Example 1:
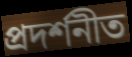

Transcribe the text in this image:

প্ৰদৰ্শনীত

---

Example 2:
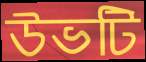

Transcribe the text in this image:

উভটি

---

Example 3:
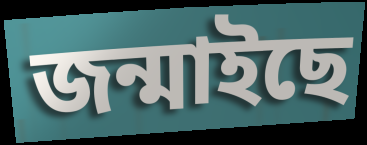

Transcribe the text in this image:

জন্মাইছে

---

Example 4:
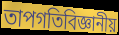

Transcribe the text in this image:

তাপগতিবিজ্ঞানীয়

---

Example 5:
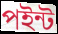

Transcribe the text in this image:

পইন্ট